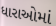
ધારાઓમાં